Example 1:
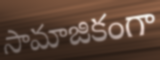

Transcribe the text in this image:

సామాజికంగా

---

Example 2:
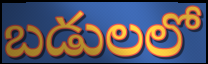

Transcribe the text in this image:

బడులలో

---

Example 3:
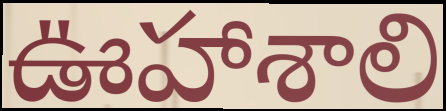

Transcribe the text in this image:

ఊహాశాలి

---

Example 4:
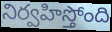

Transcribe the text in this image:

నిర్వహిస్తోంది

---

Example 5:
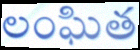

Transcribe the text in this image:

లంఘిత